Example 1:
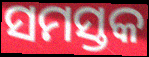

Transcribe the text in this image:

ସମସ୍ତକ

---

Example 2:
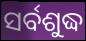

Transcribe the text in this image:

ସର୍ବଶୁଦ୍ଧ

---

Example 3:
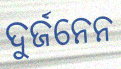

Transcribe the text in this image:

ଦୁର୍ଜନେନ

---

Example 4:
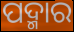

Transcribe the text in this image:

ପଦ୍ମାର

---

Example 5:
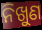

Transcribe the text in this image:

ନିଖୁଣ